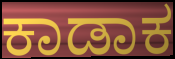
ಕಾಡಾಕ